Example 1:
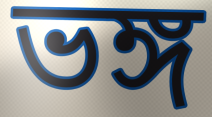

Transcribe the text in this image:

ভঙ্গ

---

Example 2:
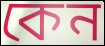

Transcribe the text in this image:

কেন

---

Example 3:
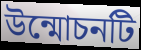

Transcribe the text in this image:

উন্মোচনটি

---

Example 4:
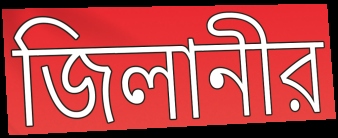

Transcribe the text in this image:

জিলানীর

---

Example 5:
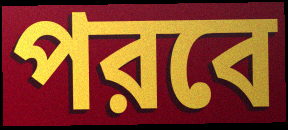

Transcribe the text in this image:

পরবে